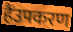
हैंउपकरण